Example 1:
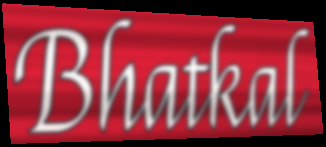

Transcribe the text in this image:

Bhatkal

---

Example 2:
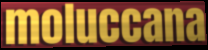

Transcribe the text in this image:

moluccana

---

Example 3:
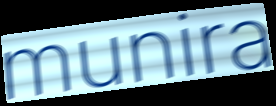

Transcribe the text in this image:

munira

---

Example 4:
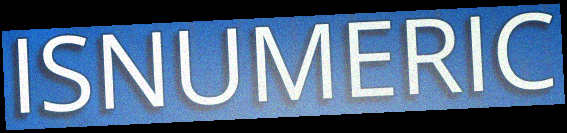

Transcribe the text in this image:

ISNUMERIC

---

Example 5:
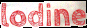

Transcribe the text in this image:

lodine